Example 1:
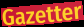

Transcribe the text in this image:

Gazetter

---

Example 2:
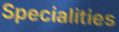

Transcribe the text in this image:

Specialities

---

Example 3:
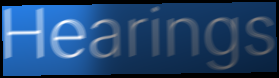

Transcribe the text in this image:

Hearings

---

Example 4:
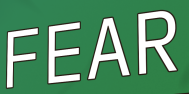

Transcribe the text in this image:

FEAR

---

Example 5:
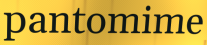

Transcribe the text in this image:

pantomime